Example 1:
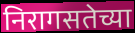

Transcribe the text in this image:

निरागसतेच्या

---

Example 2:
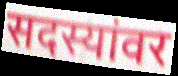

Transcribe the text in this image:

सदस्यांवर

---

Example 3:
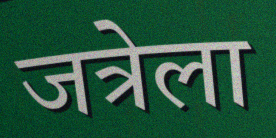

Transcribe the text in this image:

जत्रेला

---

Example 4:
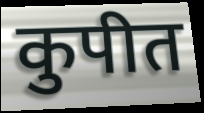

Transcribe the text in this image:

कुपीत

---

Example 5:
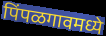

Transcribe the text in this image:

पिंपळगावमध्ये